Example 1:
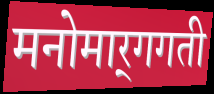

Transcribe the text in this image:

मनोमार्गगती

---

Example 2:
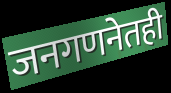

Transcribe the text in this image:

जनगणनेतही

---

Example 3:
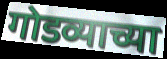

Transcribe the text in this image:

गोडव्याच्या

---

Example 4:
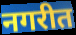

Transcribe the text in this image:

नगरीत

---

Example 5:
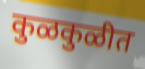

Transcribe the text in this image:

कुळकुळीत